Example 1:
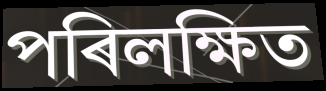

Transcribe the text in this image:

পৰিলক্ষিত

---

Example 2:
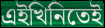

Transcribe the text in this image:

এইখিনিতেই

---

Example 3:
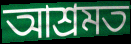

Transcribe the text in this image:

আশ্ৰমত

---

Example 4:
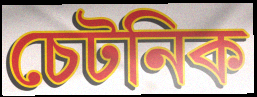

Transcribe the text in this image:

চেটনিক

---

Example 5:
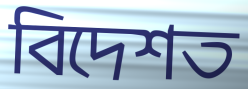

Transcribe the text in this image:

বিদেশত